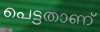
പെട്ടതാണ്